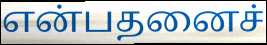
என்பதனைச்